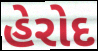
હેરોદ